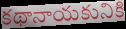
కథానాయకునికి